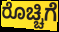
ರೊಚ್ಚಿಗೆ